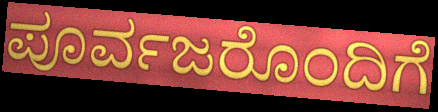
ಪೂರ್ವಜರೊಂದಿಗೆ